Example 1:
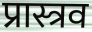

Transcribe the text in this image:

प्रास्त्रव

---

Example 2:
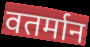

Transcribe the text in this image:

वतर्मान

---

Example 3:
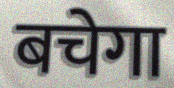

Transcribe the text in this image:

बचेगा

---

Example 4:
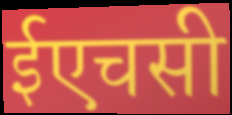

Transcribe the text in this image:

ईएचसी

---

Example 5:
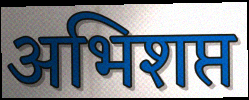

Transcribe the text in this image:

अभिशप्त